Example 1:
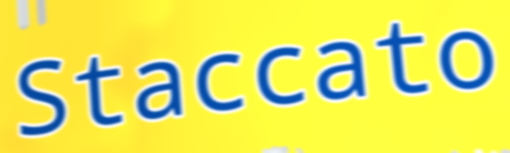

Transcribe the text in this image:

Staccato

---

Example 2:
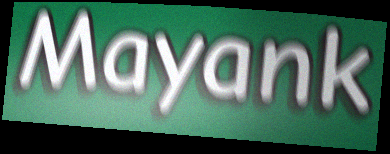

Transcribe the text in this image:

Mayank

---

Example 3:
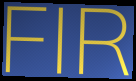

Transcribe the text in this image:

FIR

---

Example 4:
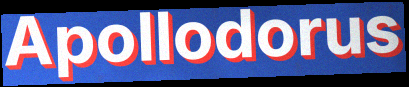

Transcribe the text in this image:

Apollodorus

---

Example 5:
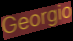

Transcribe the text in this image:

Georgio